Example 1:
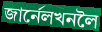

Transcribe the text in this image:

জাৰ্নেলখনলৈ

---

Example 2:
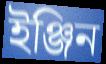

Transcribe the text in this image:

ইঞ্জিন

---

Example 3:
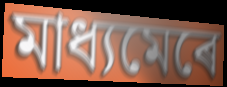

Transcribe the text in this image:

মাধ্যমেৰে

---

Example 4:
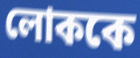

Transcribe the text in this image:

লোককে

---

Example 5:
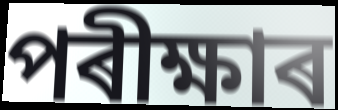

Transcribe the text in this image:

পৰীক্ষাৰ